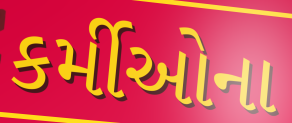
કર્મીઓના